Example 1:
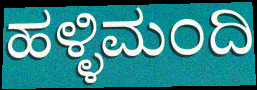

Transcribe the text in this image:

ಹಳ್ಳಿಮಂದಿ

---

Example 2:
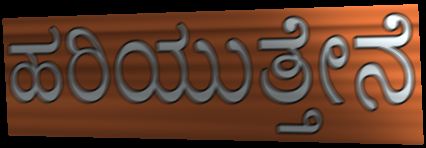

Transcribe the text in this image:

ಹರಿಯುತ್ತೇನೆ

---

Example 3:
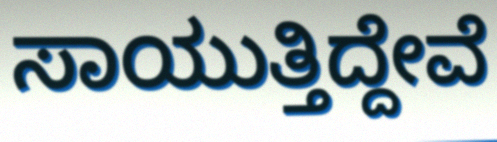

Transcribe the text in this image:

ಸಾಯುತ್ತಿದ್ದೇವೆ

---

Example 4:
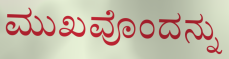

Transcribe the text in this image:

ಮುಖವೊಂದನ್ನು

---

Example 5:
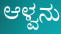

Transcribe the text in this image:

ಆಳ್ವನು